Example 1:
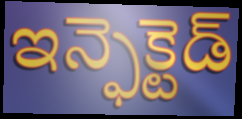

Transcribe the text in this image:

ఇన్ఫెక్టెడ్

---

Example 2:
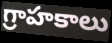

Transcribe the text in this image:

గ్రాహకాలు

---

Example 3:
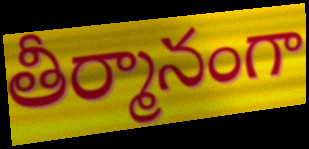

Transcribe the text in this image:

తీర్మానంగా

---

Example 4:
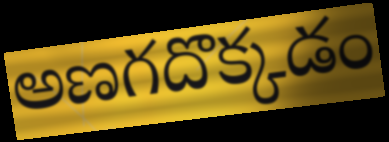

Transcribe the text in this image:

అణగదొక్కడం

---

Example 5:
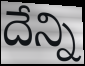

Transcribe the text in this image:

దేన్ని